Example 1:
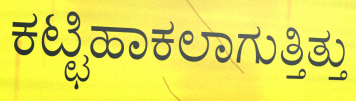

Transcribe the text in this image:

ಕಟ್ಟಿಹಾಕಲಾಗುತ್ತಿತ್ತು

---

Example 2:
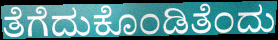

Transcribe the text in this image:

ತೆಗೆದುಕೊಂಡಿತೆಂದು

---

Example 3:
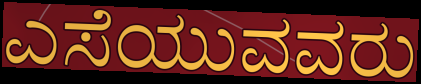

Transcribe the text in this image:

ಎಸೆಯುವವರು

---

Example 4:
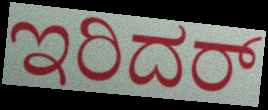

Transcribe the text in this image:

ಇರಿದರ್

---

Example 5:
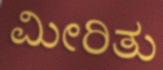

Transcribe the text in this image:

ಮೀರಿತು